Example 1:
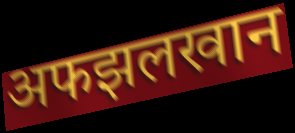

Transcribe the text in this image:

अफझलखान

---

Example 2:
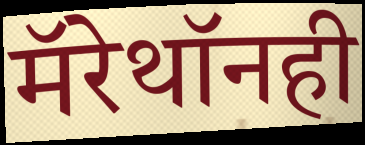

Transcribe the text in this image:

मॅरेथॉनही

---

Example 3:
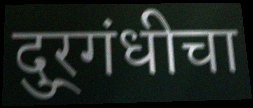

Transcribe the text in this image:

दुर्गंधीचा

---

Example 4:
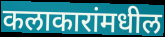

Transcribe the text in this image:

कलाकारांमधील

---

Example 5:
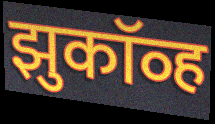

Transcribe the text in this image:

झुकॉव्ह